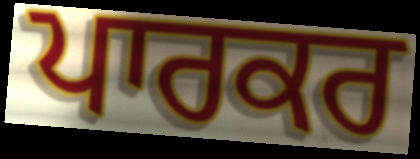
ਪਾਰਕਰ